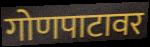
गोणपाटावर